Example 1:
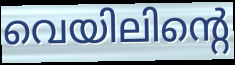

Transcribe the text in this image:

വെയിലിന്റെ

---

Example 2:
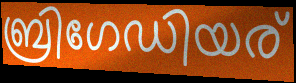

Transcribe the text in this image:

ബ്രിഗേഡിയര്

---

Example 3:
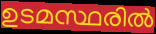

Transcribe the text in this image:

ഉടമസ്ഥരിൽ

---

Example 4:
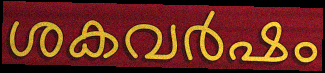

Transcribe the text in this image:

ശകവർഷം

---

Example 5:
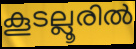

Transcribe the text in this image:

കൂടല്ലൂരിൽ